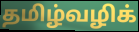
தமிழ்வழிக்